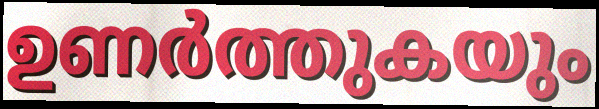
ഉണർത്തുകയും